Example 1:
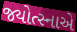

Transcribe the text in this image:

જ્યોત્સ્નાએ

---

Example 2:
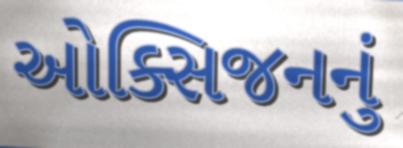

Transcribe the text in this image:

ઓક્સિજનનું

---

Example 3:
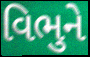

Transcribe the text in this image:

વિભુને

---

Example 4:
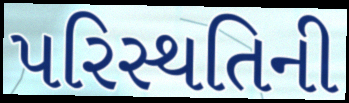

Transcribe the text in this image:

પરિસ્થતિની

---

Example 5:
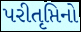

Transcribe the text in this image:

પરીતૃપ્તિનો